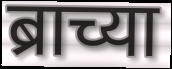
ब्राच्या